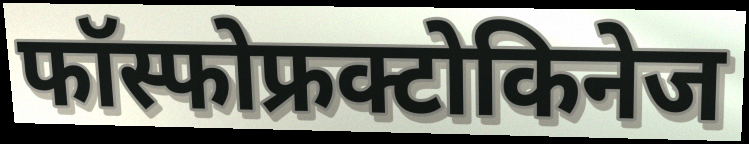
फॉस्फोफ्रक्टोकिनेज